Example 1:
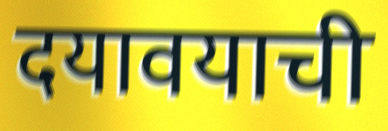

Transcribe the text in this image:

दयावयाची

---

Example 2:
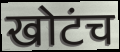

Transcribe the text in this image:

खोटंच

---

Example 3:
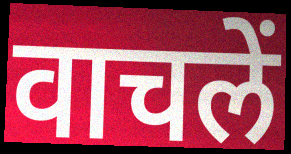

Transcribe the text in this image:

वाचलें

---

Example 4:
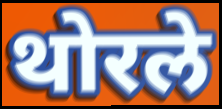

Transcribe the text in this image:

थोरले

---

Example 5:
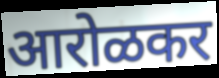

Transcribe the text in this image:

आरोळकर